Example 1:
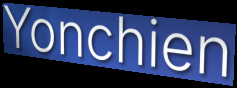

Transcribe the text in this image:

Yonchien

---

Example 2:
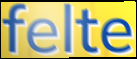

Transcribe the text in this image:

felte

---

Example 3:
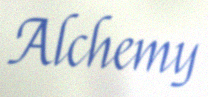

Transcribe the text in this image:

Alchemy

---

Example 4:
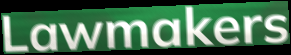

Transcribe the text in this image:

Lawmakers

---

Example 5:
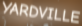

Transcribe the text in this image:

YARDVILLE